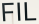
FIL